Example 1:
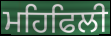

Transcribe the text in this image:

ਮਹਿਫਿਲੀ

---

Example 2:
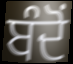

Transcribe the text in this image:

ਬੰਦੋਂ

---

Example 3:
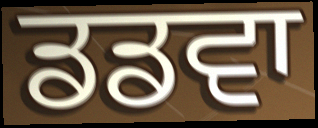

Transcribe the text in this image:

ਡਡਵਾ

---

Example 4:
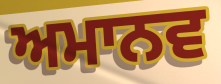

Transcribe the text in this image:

ਅਮਾਨਵ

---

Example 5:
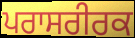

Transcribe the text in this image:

ਪਰਾਸਰੀਰਕ